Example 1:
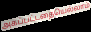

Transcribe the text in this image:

அகப்பட்டதையெல்லாம்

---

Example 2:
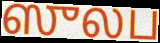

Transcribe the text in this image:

ஸுலப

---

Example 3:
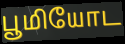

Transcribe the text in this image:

பூமியோட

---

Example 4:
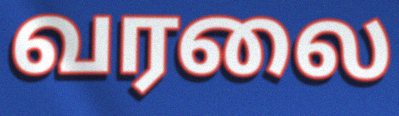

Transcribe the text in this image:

வரலை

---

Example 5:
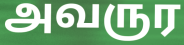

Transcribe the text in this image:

அவருர